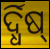
ର୍ଦ୍ଧିଷ୍